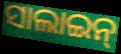
ସାଲାଇନ୍